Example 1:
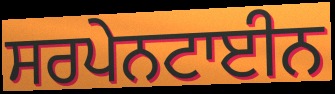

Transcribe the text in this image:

ਸਰਪੇਨਟਾਈਨ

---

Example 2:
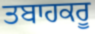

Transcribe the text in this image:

ਤਬਾਹਕਰੂ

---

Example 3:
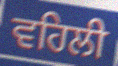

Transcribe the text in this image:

ਵਹਿਲੀ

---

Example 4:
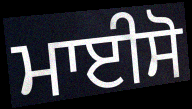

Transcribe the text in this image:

ਮਾਈਸੋ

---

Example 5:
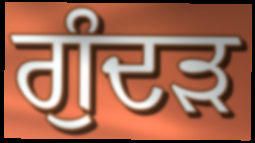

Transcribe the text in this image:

ਗੁੰਦੜ